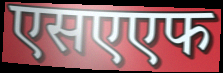
एसएएफ